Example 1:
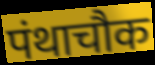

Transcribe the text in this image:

पंथाचौक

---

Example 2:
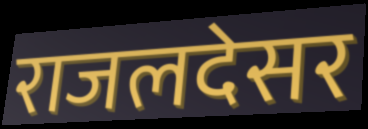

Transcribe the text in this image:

राजलदेसर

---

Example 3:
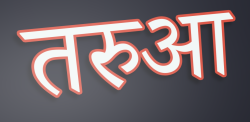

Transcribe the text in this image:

तरुआ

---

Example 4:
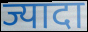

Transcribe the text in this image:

ज्‍यादा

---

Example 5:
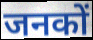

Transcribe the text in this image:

जनकों